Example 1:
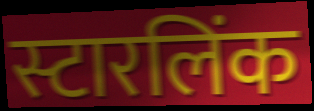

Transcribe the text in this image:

स्‍टारलिंक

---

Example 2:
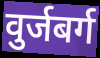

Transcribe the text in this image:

वुर्जबर्ग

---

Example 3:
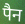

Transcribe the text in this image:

पैन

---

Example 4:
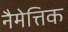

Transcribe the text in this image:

नैमेत्तिक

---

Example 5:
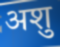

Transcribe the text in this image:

अशु